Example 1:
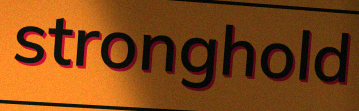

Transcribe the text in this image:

stronghold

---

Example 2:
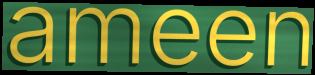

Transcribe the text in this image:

ameen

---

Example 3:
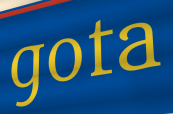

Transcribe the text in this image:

gota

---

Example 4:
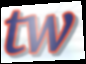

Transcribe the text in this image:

tw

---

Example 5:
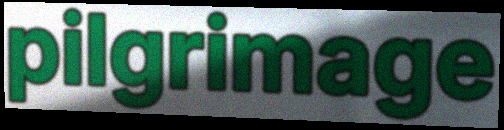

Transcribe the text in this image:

pilgrimage